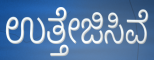
ಉತ್ತೇಜಿಸಿವೆ